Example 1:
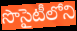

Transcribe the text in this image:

సొసైటీలోని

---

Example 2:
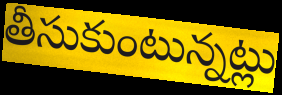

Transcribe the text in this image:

తీసుకుంటున్నట్లు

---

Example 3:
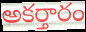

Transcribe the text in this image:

అకర్తారం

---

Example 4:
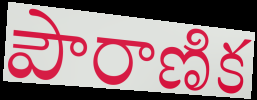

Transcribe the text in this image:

పౌరాణిక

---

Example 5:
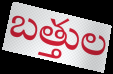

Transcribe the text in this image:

బత్తుల